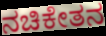
ನಚಿಕೇತನ